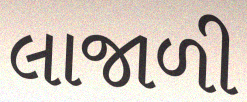
લાજાળી